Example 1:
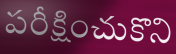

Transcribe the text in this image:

పరీక్షించుకొని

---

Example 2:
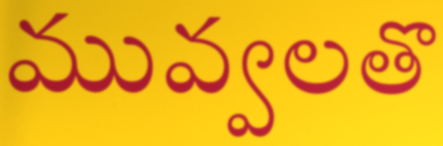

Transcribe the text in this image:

మువ్వలతొ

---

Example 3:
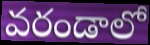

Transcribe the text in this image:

వరండాలో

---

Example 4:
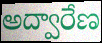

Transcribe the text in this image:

అద్వారేణ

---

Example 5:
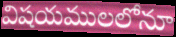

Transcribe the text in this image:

విషయములలోనూ